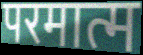
परमात्म